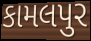
કામલપુર